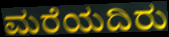
ಮರೆಯದಿರು